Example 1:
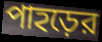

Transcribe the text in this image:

পাহড়ের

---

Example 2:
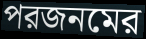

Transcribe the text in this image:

পরজনমের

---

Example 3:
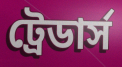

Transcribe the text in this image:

ট্রেডার্স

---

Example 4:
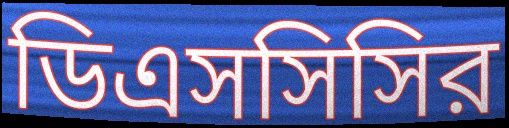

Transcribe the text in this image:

ডিএসসিসির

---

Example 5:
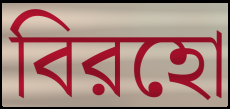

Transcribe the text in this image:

বিরহো